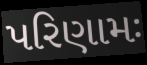
પરિણામઃ